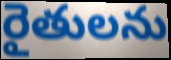
రైతులను